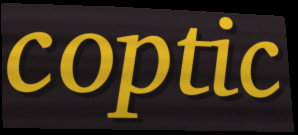
coptic